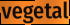
vegetal